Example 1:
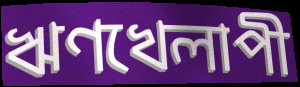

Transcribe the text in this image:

ঋণখেলাপী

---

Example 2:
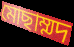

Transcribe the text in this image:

মোছাম্মদ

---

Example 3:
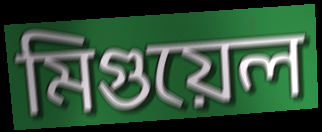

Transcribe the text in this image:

মিগুয়েল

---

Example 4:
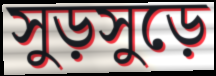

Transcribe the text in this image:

সুড়সুড়ে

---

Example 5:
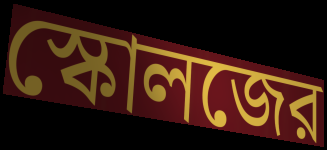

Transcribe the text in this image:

স্কোলজের